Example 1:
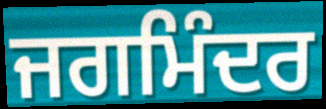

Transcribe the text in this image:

ਜਗਮਿੰਦਰ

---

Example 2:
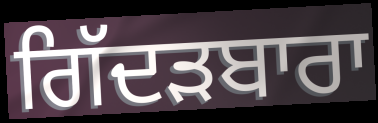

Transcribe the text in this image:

ਗਿੱਦੜਬਾਰਾ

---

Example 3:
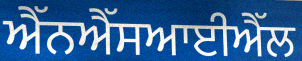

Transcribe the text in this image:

ਐੱਨਐੱਸਆਈਐੱਲ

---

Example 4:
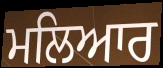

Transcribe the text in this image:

ਮਲਿਆਰ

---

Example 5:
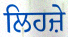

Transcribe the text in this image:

ਲਿਹਜ਼ੇ